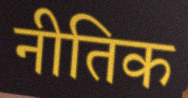
नीतिक